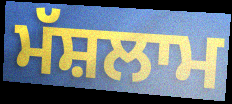
ਮੱਸ਼ਲਾਮ